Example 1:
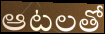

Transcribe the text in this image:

ఆటలతో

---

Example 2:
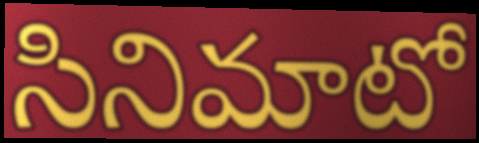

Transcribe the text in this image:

సినిమాటో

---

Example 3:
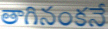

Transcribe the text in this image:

తాగినంకనే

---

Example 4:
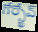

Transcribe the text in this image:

గోర్స్ఖోవ్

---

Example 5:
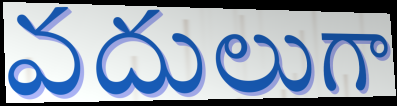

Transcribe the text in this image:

వదులుగా